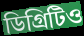
ডিগ্রিটিও